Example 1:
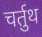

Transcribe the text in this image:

चर्तुथ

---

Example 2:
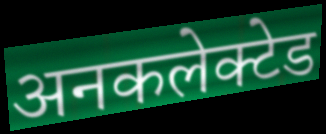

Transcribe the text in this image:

अनकलेक्टेड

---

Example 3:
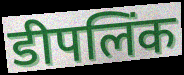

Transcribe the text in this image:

डीपलिंक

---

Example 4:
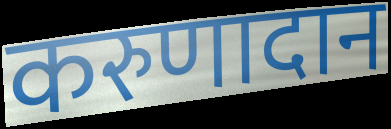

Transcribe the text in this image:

करुणादान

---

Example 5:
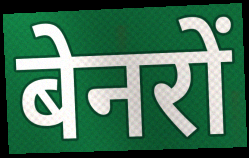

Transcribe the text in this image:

बेनरों